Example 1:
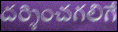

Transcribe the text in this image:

దర్శించగలిగే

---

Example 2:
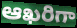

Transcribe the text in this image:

ఆఖరిగా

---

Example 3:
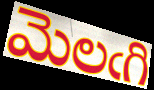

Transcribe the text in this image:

మెలఁగి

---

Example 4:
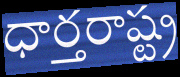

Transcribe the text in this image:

ధార్తరాష్ట్ర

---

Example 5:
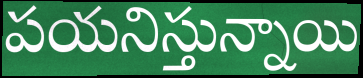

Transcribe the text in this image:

పయనిస్తున్నాయి